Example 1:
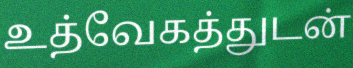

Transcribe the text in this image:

உத்வேகத்துடன்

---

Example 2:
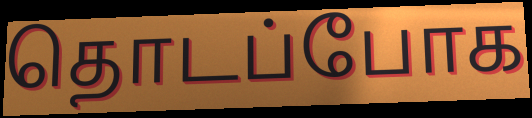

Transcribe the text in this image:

தொடப்போக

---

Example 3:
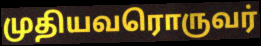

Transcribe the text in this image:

முதியவரொருவர்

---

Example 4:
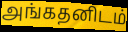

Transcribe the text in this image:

அங்கதனிடம்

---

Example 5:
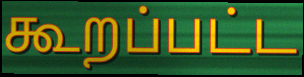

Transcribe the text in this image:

கூறப்பட்ட